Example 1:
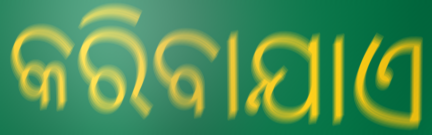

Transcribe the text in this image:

କରିବାଯାଏ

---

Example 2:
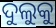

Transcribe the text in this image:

ଦୁଲୁକୁ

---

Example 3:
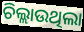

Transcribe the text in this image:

ଚିଲ୍ଲାଉଥିଲା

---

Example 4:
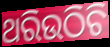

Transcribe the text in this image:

ଥରିଉଠିଚି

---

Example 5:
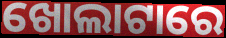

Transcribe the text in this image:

ଖୋଲାଟାରେ